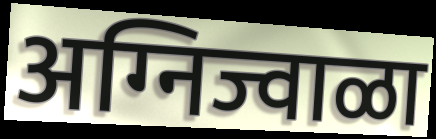
अग्निज्वाळा